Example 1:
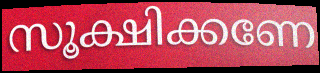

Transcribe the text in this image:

സൂക്ഷിക്കണേ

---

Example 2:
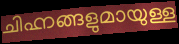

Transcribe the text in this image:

ചിഹ്നങ്ങളുമായുള്ള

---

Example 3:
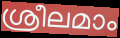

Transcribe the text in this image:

ശ്രീലമാം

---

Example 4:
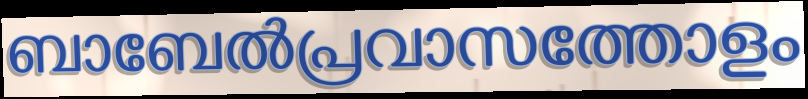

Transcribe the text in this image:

ബാബേൽപ്രവാസത്തോളം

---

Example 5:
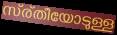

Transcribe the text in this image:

സ്ര്തീയോടുള്ള